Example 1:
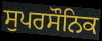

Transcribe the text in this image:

ਸੁਪਰਸੌਨਿਕ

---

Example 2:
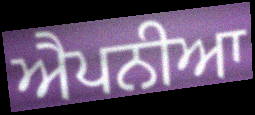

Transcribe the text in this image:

ਐਪਨੀਆ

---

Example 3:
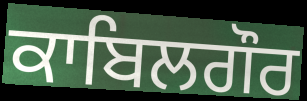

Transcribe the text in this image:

ਕਾਬਿਲਗੌਰ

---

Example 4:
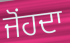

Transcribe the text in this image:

ਜੋਂਹਦਾ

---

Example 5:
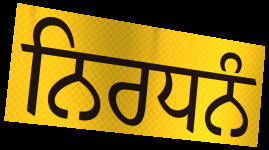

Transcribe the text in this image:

ਨਿਰਧਨੰ